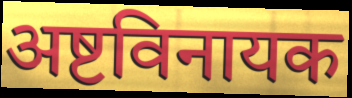
अष्टविनायक